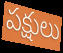
పక్షులు